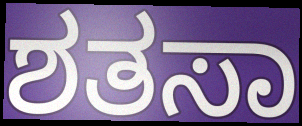
ಶತಸಾ